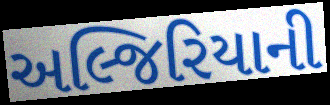
અલ્જિરિયાની